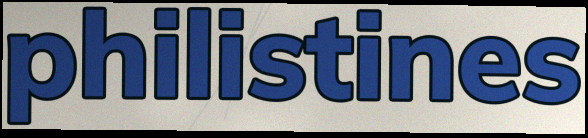
philistines